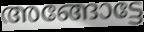
അങ്ങോട്ടേ